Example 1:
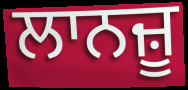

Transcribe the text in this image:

ਲਾਨਜ਼ੂ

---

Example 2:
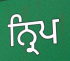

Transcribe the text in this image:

ਨ੍ਰਿਪ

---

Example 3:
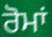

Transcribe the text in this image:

ਰੋਮਾਂ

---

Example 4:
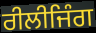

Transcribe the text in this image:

ਰੀਲੀਜਿੰਗ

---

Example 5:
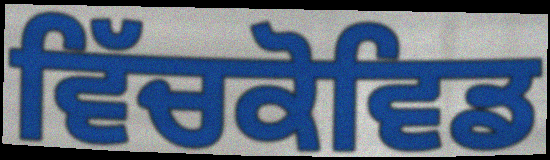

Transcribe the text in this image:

ਵਿੱਚਕੋਵਿਡ